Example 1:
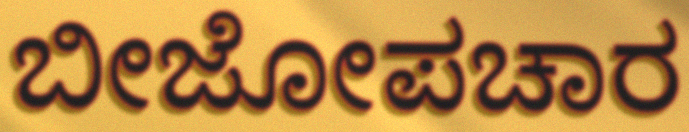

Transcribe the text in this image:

ಬೀಜೋಪಚಾರ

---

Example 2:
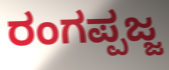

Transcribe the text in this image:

ರಂಗಪ್ಪಜ್ಜ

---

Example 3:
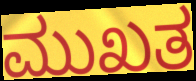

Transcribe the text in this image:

ಮುಖತ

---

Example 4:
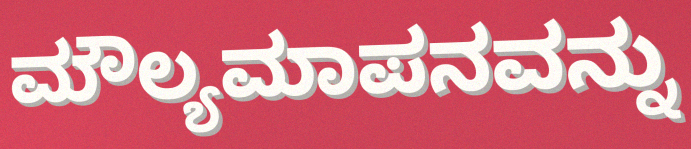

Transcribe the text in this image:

ಮೌಲ್ಯಮಾಪನವನ್ನು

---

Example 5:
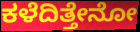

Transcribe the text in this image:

ಕಳೆದಿತ್ತೇನೋ